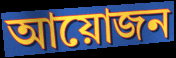
আয়োজন